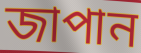
জাপান